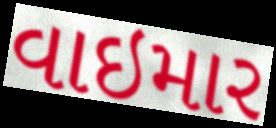
વાઇમાર